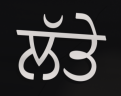
ਲੱਤੇ